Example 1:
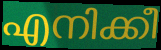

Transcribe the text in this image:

എനിക്കീ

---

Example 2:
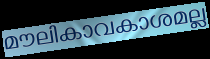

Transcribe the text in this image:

മൗലികാവകാശമല്ല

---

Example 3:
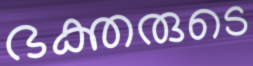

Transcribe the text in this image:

ഭക്തരുടെ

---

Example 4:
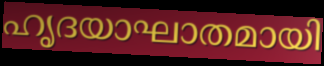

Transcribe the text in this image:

ഹൃദയാഘാതമായി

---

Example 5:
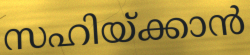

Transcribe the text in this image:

സഹിയ്ക്കാൻ